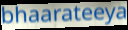
bhaarateeya